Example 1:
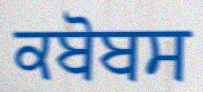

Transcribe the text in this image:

ਕਬੋਬਸ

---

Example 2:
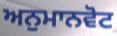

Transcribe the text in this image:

ਅਨੁਮਾਨਵੋਟ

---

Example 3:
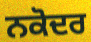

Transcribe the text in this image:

ਨਕੋਦਰ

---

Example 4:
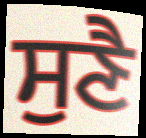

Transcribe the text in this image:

ਸੁਣੈ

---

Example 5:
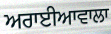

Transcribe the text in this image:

ਅਰਾਈਆਵਾਲਾ